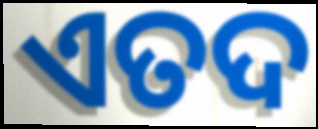
ଏତଦ